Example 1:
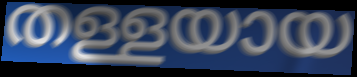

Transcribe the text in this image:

തള്ളയായ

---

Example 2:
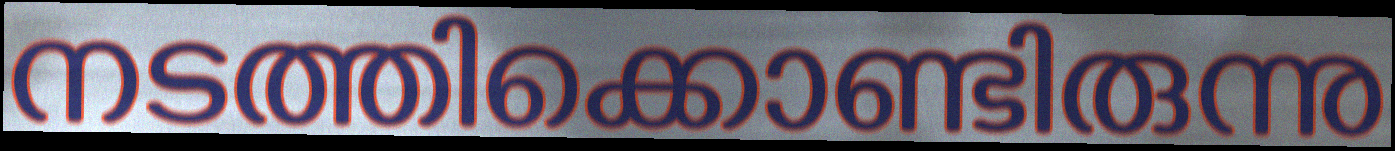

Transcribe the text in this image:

നടത്തിക്കൊണ്ടിരുന്നു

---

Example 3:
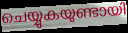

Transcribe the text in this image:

ചെയ്യുകയുണ്ടായി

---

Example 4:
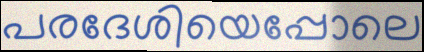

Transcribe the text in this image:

പരദേശിയെപ്പോലെ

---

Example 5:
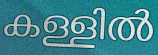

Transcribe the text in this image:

കള്ളിൽ